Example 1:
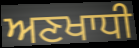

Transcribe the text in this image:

ਅਣਖਾਧੀ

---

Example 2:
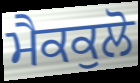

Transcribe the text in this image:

ਮੈਕਕੁਲੋ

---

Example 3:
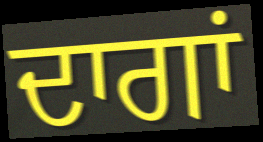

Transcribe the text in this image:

ਦਾਗਾਂ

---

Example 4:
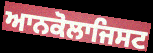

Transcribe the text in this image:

ਆਨਕੋਲਾਜਿਸਟ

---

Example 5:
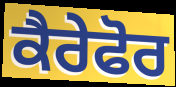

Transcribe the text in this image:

ਕੈਰੇਫੋਰ